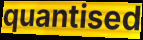
quantised